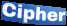
Cipher